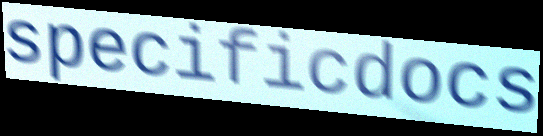
specificdocs